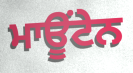
ਮਾਊਂਟੇਨ